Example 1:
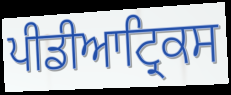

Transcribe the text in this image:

ਪੀਡੀਆਟ੍ਰਿਕਸ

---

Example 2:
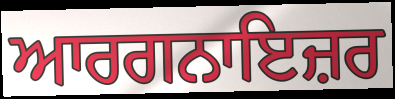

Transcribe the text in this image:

ਆਰਗਨਾਇਜ਼ਰ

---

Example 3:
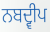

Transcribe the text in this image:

ਨਬਦ੍ਵੀਪ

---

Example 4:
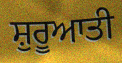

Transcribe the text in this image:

ਸ਼ੁਰੂਆਤੀ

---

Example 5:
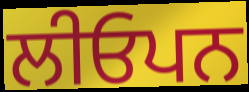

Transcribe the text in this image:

ਲੀਓਪਨ